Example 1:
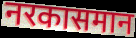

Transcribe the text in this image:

नरकासमान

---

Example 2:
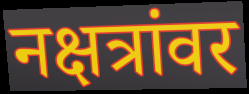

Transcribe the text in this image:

नक्षत्रांवर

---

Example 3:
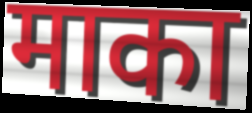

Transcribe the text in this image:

माका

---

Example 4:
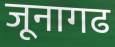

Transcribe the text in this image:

जूनागढ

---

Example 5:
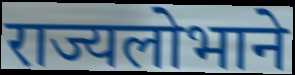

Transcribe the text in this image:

राज्यलोभाने